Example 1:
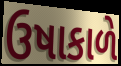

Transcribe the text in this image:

ઉષાકાળે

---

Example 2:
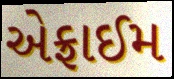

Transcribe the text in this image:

એફ્રાઈમ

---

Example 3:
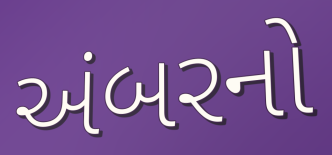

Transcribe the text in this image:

અંબરનો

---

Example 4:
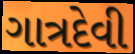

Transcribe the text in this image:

ગાત્રદેવી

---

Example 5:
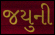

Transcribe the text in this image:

જયુની